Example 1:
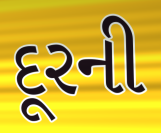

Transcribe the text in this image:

દૂરની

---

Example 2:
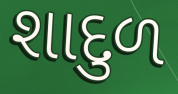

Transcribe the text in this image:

શાદુળ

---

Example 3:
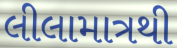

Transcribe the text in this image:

લીલામાત્રથી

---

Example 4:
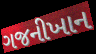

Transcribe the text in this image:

ગજનીખાન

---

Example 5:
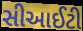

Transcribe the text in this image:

સીઆઈટી